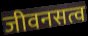
जीवनसत्व